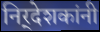
निर्देशकांनी